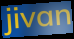
jivan